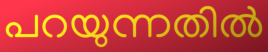
പറയുന്നതിൽ